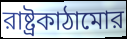
রাষ্ট্রকাঠামোর